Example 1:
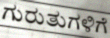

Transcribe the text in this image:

ಗುರುತುಗಳಿಗೆ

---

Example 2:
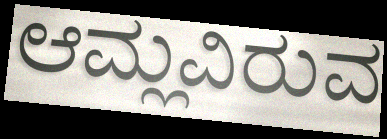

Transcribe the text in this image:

ಆಮ್ಲವಿರುವ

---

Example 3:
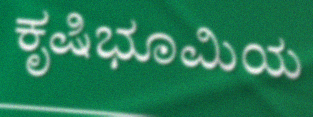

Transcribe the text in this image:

ಕೃಷಿಭೂಮಿಯ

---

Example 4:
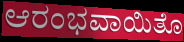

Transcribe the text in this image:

ಆರಂಭವಾಯಿತೊ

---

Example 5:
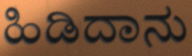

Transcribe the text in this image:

ಹಿಡಿದಾನು